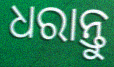
ଧରାନ୍ତୁ